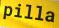
pilla